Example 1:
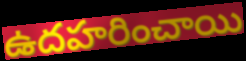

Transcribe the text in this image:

ఉదహరించాయి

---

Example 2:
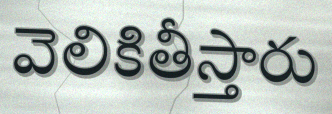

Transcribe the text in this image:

వెలికితీస్తారు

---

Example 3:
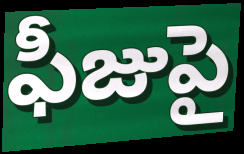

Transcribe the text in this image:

ఫీజుపై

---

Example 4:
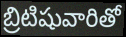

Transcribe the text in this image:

బ్రిటిషువారితో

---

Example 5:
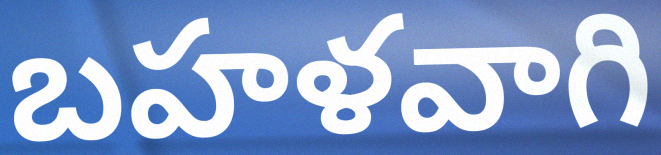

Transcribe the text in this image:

బహళవాగి